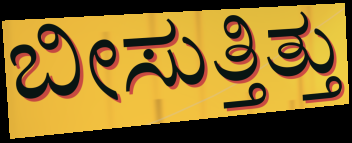
ಬೀಸುತ್ತಿತ್ತು